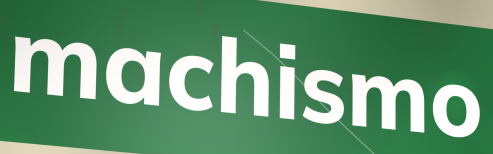
machismo